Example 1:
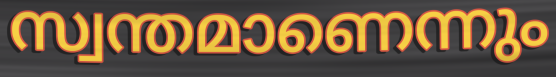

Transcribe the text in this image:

സ്വന്തമാണെന്നും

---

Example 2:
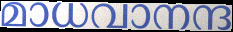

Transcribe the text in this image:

മാധവാനന്ദ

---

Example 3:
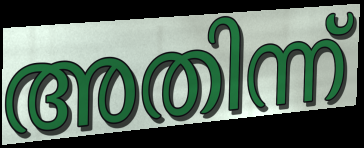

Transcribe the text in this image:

അതിന്ന്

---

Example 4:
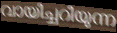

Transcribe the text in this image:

വായിച്ചറിയുന്ന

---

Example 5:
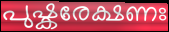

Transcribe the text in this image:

പുഷ്കരേക്ഷണഃ